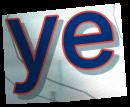
ye